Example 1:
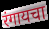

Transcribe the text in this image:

रंगायचा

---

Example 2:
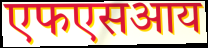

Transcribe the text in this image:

एफएसआय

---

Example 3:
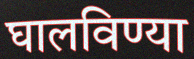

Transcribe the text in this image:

घालविण्या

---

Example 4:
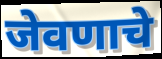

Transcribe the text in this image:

जेवणाचे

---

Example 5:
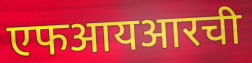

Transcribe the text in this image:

एफआयआरची